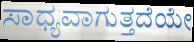
ಸಾಧ್ಯವಾಗುತ್ತದೆಯೇ